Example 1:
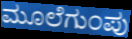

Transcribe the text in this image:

ಮೂಲೆಗುಂಪು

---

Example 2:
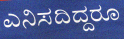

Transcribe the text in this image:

ಎನಿಸದಿದ್ದರೂ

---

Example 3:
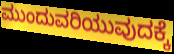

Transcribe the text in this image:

ಮುಂದುವರಿಯುವುದಕ್ಕೆ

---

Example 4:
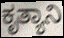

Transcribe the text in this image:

ಕೃತ್ಯಾನಿ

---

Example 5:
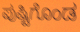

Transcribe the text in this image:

ಪುಷ್ಟಿಗೊಂಡ